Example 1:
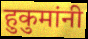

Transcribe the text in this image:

हुकुमांनी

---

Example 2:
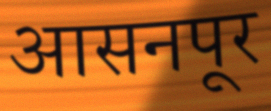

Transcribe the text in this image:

आसनपूर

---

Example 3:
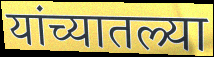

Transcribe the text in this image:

यांच्यातल्या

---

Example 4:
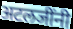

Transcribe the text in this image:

अटलजींनी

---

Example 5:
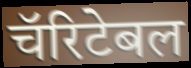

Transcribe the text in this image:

चॅरिटेबल